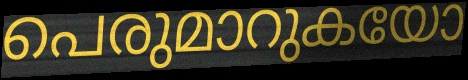
പെരുമാറുകയോ